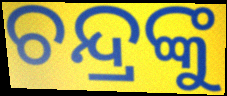
ଚନ୍ଦ୍ରଙ୍କୁ